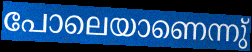
പോലെയാണെന്നു്